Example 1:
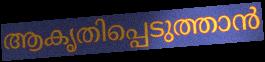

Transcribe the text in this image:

ആകൃതിപ്പെടുത്താൻ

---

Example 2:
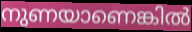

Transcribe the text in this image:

നുണയാണെങ്കിൽ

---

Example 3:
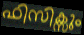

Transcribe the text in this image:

ഫിസിക്സും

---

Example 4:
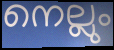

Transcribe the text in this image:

നെല്ലും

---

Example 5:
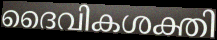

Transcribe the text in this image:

ദൈവികശക്തി